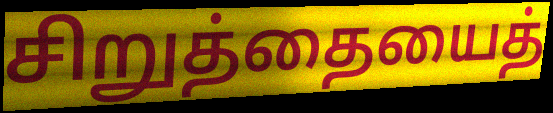
சிறுத்தையைத்